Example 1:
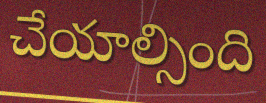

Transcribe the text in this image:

చేయాల్సింది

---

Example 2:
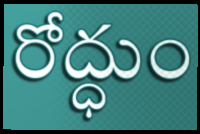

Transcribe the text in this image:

రోద్ధుం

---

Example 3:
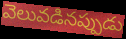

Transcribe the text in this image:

వెలువడినప్పుడు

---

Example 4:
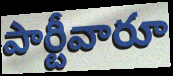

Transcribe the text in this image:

పార్టీవారూ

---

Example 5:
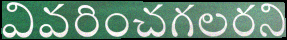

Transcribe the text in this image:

వివరించగలరని